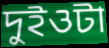
দুইওটা